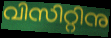
വിസിറ്റിനു